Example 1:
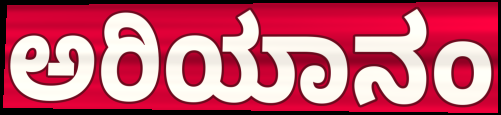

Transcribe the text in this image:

ಅರಿಯಾನಂ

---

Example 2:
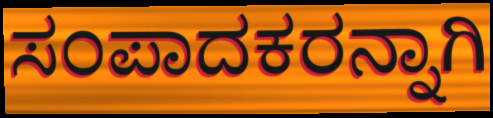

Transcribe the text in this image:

ಸಂಪಾದಕರನ್ನಾಗಿ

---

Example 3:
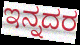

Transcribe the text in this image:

ಇನ್ನದರ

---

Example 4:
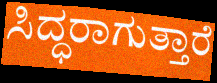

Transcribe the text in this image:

ಸಿದ್ಧರಾಗುತ್ತಾರೆ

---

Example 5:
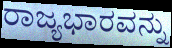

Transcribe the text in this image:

ರಾಜ್ಯಭಾರವನ್ನು